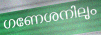
ഗണേശനിലും